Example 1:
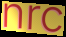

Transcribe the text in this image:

nrc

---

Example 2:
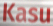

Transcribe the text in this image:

Kasu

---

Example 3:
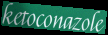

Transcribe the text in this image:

ketoconazole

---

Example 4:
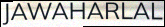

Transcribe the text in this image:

JAWAHARLAL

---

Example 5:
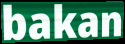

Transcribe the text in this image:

bakan